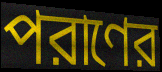
পরাণের